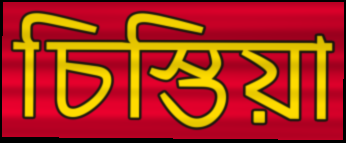
চিস্তিয়া